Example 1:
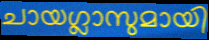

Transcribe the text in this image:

ചായഗ്ലാസുമായി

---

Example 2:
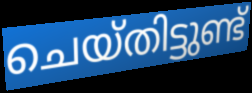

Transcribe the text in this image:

ചെയ്തിട്ടുണ്ട്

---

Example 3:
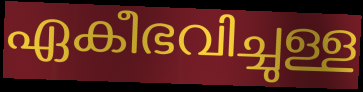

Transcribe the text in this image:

ഏകീഭവിച്ചുള്ള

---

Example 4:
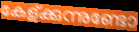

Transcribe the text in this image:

കേള്ക്കുന്നുണ്ടോ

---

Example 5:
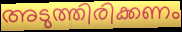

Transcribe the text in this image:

അടുത്തിരിക്കണം